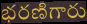
భరణిగారు